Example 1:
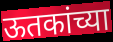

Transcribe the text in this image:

ऊतकांच्या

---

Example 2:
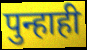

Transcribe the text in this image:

पुन्हाही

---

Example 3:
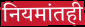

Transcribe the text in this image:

नियमांतही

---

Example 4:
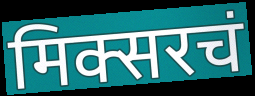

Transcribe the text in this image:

मिक्सरचं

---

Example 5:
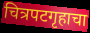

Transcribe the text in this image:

चित्रपटगृहाचा